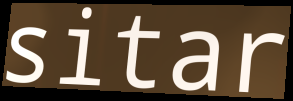
sitar